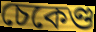
চেকেণ্ড